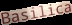
Basilica